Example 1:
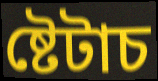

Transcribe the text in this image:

ষ্টেটাচ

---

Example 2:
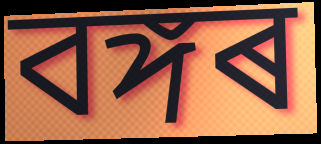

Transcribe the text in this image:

বঙ্গৰ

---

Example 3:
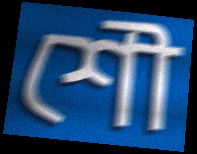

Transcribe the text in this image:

শৌ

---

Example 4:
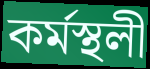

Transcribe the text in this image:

কৰ্মস্থলী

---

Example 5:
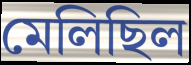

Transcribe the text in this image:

মেলিছিল